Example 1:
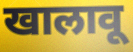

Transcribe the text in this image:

खालावू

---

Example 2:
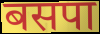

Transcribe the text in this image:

बसपा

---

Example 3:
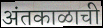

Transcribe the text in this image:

अंतकाळाची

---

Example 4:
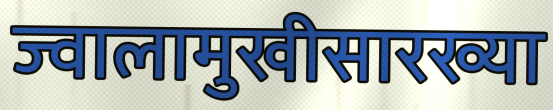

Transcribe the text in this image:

ज्वालामुखीसारख्या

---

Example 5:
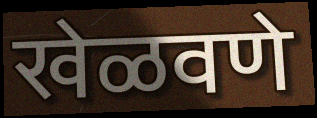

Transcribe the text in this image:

खेळवणे